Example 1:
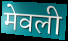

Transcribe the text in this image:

मेवली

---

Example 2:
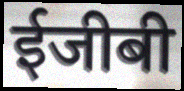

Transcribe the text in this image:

ईजीबी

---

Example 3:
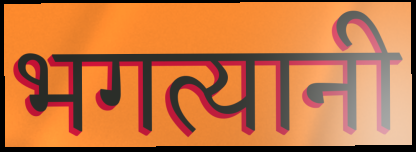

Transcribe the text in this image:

भगत्यानी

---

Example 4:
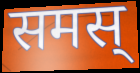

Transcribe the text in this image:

समस्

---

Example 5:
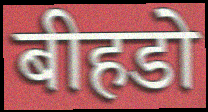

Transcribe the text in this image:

बीहडो